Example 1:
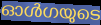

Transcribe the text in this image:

ഓൾഗയുടെ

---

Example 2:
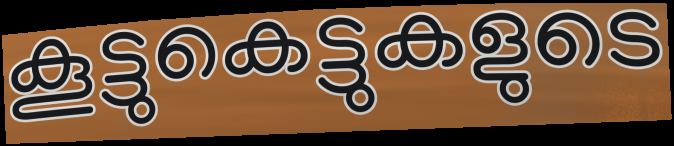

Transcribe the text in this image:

കൂട്ടുകെട്ടുകളുടെ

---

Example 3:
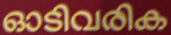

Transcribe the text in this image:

ഓടിവരിക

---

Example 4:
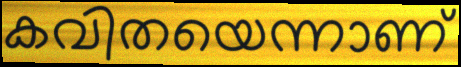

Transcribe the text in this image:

കവിതയെന്നാണ്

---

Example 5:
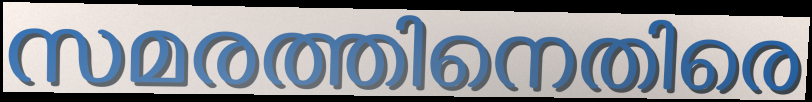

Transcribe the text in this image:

സമരത്തിനെതിരെ